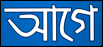
আগে